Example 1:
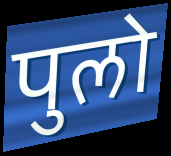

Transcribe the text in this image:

पुलो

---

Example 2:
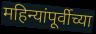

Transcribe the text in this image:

महिन्यांपूर्वीच्या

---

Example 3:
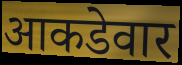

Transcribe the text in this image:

आकडेवार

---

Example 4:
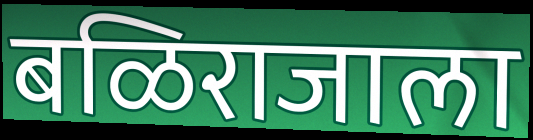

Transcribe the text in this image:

बळिराजाला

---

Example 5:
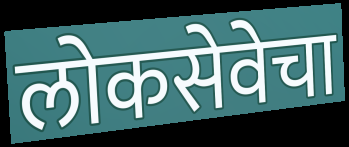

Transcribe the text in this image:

लोकसेवेचा